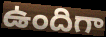
ఉందిగా